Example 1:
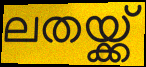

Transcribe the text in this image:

ലതയ്ക്ക്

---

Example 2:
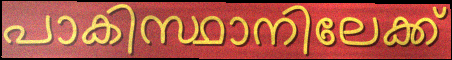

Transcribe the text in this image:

പാകിസ്ഥാനിലേക്ക്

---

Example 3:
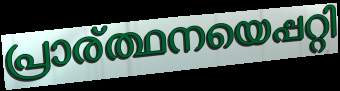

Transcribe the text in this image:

പ്രാര്ത്ഥനയെപ്പറ്റി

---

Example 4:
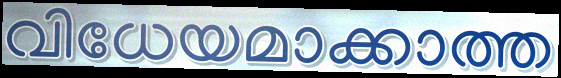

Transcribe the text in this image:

വിധേയമാക്കാത്ത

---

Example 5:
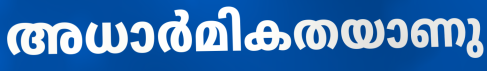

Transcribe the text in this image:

അധാർമികതയാണു